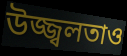
উজ্জ্বলতাও